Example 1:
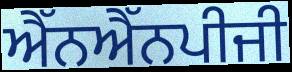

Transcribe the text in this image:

ਐੱਨਐੱਨਪੀਜੀ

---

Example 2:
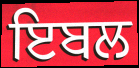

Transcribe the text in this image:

ਇਬਲ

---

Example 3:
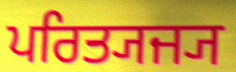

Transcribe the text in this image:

ਪਰਿਤ੍ਯਜ੍ਯ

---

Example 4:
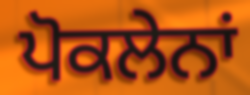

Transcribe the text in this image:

ਪੋਕਲੇਨਾਂ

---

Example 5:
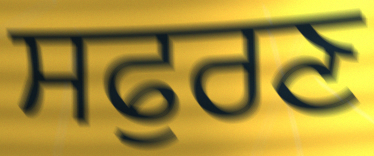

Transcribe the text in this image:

ਸਫੁਰਣ